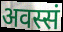
अवस्सं